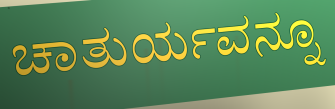
ಚಾತುರ್ಯವನ್ನೂ